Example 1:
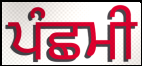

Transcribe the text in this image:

ਪੰਛਮੀ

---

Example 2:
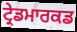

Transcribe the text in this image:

ਟ੍ਰੇਡਮਾਰਕਡ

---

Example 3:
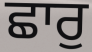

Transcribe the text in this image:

ਛਾਰੁ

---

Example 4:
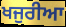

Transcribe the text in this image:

ਖਜੁਰੀਆ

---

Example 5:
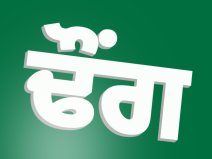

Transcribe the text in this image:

ਢੌਂਗ